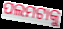
ପଲମଟାକୁ